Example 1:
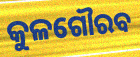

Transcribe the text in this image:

କୁଳଗୌରବ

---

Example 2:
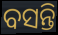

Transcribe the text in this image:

ବସନ୍ତି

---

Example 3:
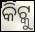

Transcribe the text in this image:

କିଟ୍କୁ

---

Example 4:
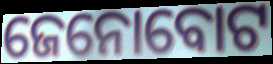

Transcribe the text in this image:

ଜେନୋବୋଟ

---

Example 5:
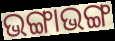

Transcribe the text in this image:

ଭଙ୍ଗାଭଙ୍ଗ